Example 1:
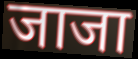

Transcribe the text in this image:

जाजा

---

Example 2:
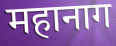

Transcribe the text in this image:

महानाग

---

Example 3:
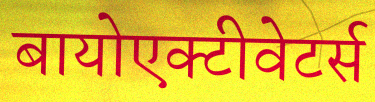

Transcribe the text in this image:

बायोएक्टीवेटर्स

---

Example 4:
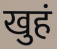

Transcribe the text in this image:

खुहं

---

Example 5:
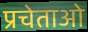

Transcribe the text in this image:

प्रचेताओ